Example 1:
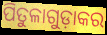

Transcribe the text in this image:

ପିତୁଳାଗୁଡ଼ାକର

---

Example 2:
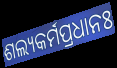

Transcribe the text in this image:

ଶଲ୍ୟକର୍ମପ୍ରଧାନଃ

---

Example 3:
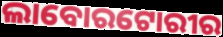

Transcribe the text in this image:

ଲାବୋରଟୋରୀର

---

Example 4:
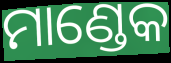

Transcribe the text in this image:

ମାଣ୍ଡେକ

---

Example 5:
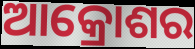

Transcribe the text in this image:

ଆକ୍ରୋଶର